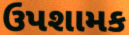
ઉપશામક